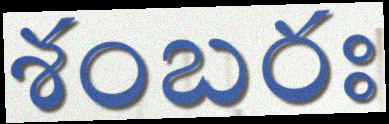
శంబరః